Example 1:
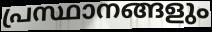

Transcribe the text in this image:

പ്രസ്ഥാനങ്ങളും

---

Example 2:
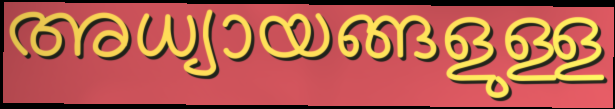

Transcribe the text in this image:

അധ്യായങ്ങളുള്ള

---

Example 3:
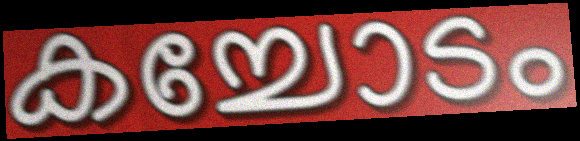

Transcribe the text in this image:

കച്ചോടം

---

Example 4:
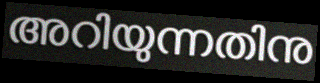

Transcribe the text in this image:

അറിയുന്നതിനു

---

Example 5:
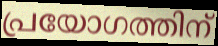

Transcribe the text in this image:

പ്രയോഗത്തിന്